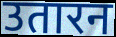
उतारन